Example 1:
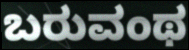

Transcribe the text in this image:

ಬರುವಂಥ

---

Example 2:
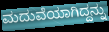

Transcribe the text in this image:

ಮದುವೆಯಾಗಿದ್ದನ್ನು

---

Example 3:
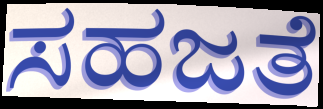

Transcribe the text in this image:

ಸಹಜತೆ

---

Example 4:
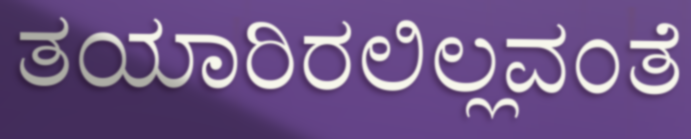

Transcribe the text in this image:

ತಯಾರಿರಲಿಲ್ಲವಂತೆ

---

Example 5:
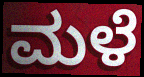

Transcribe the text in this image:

ಮಳೆ